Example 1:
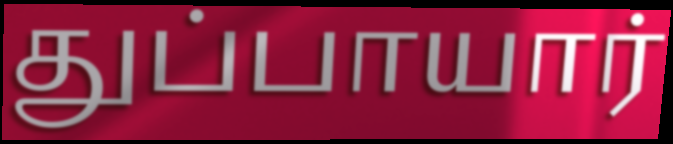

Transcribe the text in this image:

துப்பாயார்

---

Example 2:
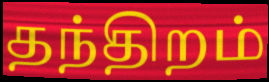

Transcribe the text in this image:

தந்திறம்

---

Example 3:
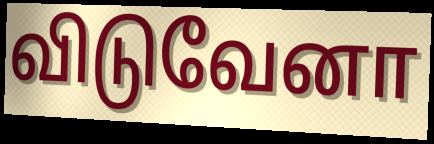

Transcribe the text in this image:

விடுவேனா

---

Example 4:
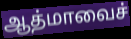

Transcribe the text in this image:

ஆத்மாவைச்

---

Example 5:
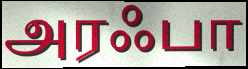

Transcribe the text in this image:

அரஃபா